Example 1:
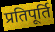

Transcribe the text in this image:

प्रतिपूर्ति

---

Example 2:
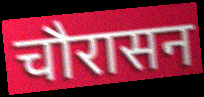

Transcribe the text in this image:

चौरासन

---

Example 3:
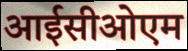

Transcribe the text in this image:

आईसीओएम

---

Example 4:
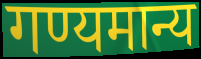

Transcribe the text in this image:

गण्यमान्य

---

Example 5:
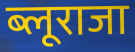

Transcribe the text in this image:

ब्लूराजा